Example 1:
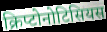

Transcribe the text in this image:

क्रिप्टोनोटिसियस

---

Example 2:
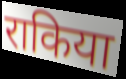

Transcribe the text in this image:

राकिया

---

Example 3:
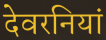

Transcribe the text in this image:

देवरनियां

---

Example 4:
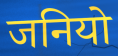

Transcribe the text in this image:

जनियो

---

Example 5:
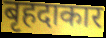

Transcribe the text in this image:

बृहदाकार